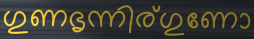
ഗുണഭൃന്നിര്ഗുണോ